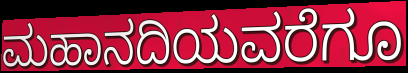
ಮಹಾನದಿಯವರೆಗೂ